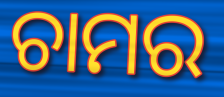
ଚାମର